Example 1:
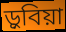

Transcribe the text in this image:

ড়ুবিয়া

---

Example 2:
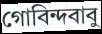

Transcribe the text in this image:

গোবিন্দবাবু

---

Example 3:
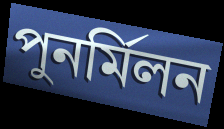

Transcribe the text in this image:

পুনর্মিলন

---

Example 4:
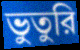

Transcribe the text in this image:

ভুতুরি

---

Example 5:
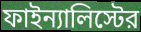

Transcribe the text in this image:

ফাইন্যালিস্টের